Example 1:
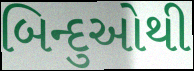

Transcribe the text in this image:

બિન્દુઓથી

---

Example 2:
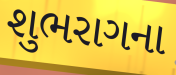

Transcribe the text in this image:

શુભરાગના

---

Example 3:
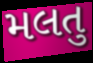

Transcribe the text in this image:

મલતુ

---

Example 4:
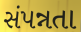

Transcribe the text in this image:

સંપન્નતા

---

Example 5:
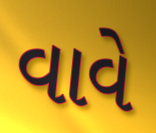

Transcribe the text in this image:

વાવે